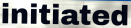
initiated